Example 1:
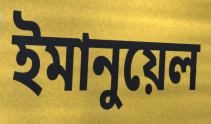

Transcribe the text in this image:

ইমানুয়েল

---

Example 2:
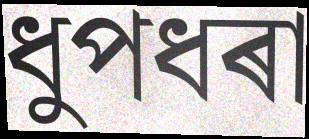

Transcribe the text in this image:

ধুপধৰা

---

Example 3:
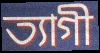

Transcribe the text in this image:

ত্যাগী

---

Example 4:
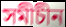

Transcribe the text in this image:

সমীচীন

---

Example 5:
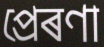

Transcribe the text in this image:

প্ৰেৰণা